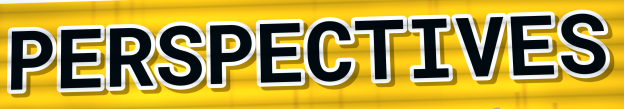
PERSPECTIVES